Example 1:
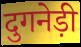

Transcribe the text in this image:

दुगनेड़ी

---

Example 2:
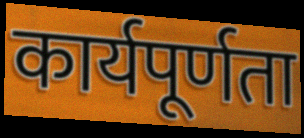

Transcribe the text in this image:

कार्यपूर्णता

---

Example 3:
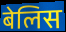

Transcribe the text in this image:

बेलिस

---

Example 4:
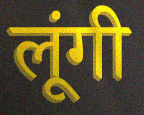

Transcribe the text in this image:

लूंगी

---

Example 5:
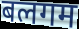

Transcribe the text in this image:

बलगम